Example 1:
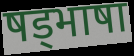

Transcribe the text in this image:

षड्भाषा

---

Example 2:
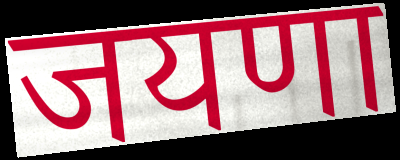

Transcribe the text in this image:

जयणा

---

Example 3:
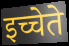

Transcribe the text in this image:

इच्चेते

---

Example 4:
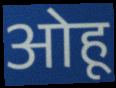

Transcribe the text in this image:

ओहू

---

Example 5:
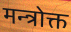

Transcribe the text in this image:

मन्त्रोक्त